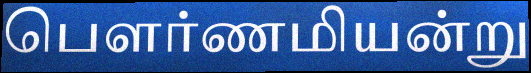
பெளர்ணமியன்று